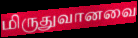
மிருதுவானவை